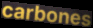
carbones